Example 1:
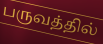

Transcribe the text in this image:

பருவத்தில்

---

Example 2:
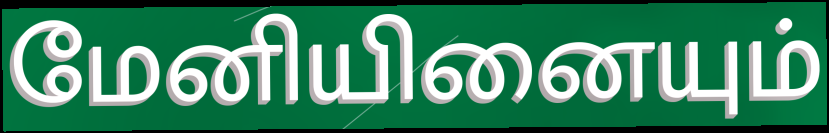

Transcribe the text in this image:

மேனியினையும்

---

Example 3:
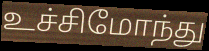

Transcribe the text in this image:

உச்சிமோந்து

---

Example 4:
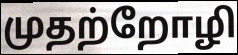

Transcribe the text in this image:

முதற்றோழி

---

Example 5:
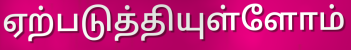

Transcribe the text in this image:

ஏற்படுத்தியுள்ளோம்